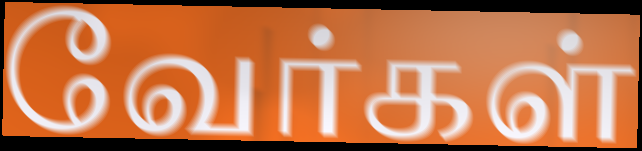
வேர்கள்